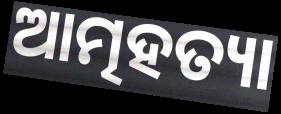
ଆତ୍ମହତ୍ୟା